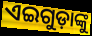
ଏଇଗୁଡ଼ାଙ୍କୁ